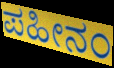
ಪಹೀನಂ